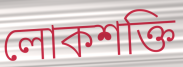
লোকশক্তি